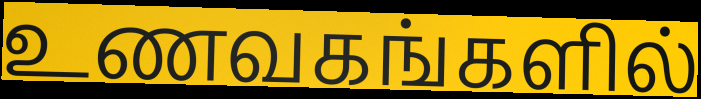
உணவகங்களில்